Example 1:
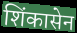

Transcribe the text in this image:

शिंकासेन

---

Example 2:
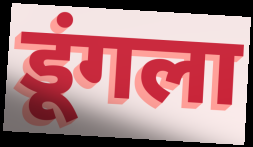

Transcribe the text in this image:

डूंगला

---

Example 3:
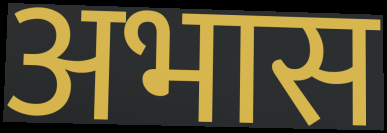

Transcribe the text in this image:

अभास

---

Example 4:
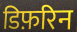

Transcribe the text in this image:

डिफ़रिन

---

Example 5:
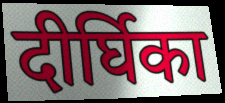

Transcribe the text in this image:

दीर्घिका